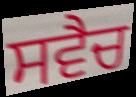
ਸਵੈਚ